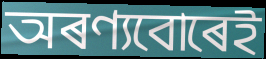
অৰণ্যবোৰেই